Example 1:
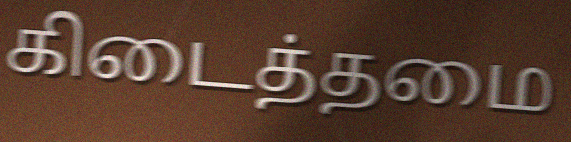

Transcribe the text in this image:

கிடைத்தமை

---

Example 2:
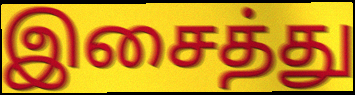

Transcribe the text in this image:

இசைத்து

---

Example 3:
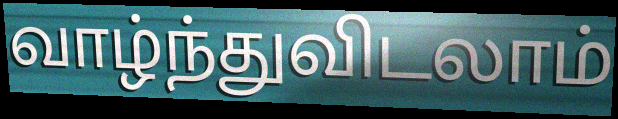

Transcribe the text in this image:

வாழ்ந்துவிடலாம்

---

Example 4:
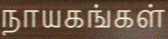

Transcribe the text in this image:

நாயகங்கள்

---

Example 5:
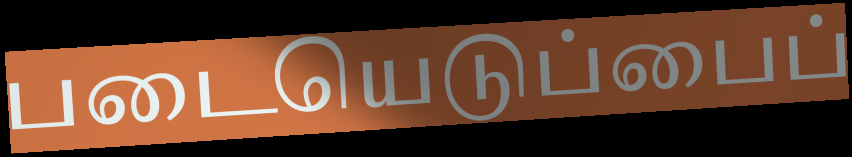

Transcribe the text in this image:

படையெடுப்பைப்